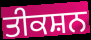
ਤੀਕਸ਼ਨ